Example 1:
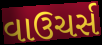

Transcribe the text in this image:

વાઉચર્સ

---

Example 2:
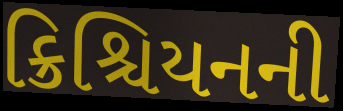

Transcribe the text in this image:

ક્રિશ્ચિયનની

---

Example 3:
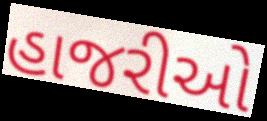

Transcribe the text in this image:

હાજરીઓ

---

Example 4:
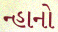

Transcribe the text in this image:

ન્હાનો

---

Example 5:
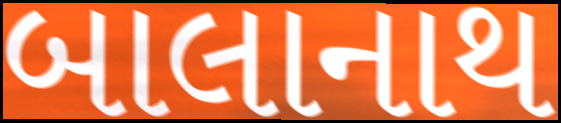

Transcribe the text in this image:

બાલાનાથ